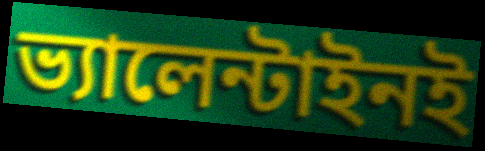
ভ্যালেন্টাইনই